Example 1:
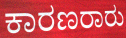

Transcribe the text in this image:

ಕಾರಣರಾರು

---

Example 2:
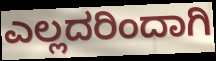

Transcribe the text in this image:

ಎಲ್ಲದರಿಂದಾಗಿ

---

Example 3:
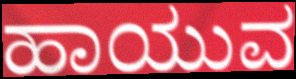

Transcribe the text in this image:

ಹಾಯುವ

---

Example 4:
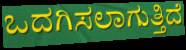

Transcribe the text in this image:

ಒದಗಿಸಲಾಗುತ್ತಿದೆ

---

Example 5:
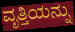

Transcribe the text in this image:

ವೃತ್ತಿಯನ್ನು